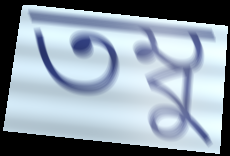
তম্বু